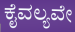
ಕೈವಲ್ಯವೇ